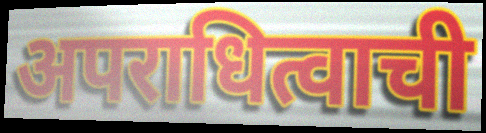
अपराधित्वाची